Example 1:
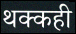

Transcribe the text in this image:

थक्कही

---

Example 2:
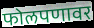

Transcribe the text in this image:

फोलपणावर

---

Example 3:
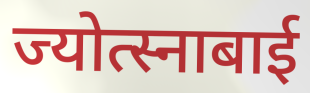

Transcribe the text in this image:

ज्योत्स्नाबाई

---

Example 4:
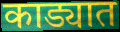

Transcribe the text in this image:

काड्यात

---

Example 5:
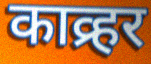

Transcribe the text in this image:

काव्र्हर